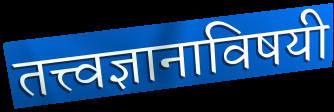
तत्त्वज्ञानाविषयी